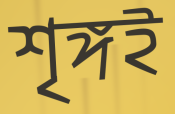
শৃঙ্গই